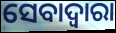
ସେବାଦ୍ବାରା